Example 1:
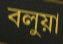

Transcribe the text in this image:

বলুয়া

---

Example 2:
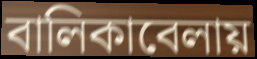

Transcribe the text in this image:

বালিকাবেলায়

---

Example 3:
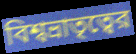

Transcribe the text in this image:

বিশ্বভ্রাতৃত্বের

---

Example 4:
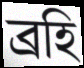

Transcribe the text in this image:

ব্রহি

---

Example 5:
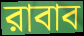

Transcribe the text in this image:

রাবাব